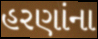
હરણાંના